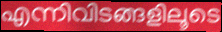
എന്നിവിടങ്ങളിലൂടെ